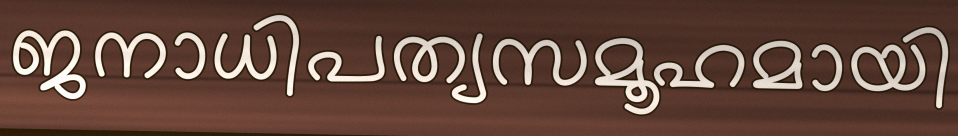
ജനാധിപത്യസമൂഹമായി